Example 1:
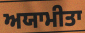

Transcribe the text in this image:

ਅਯਾਮੀਤਾ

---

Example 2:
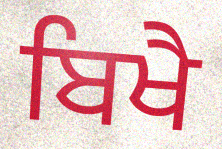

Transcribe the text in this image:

ਬਿਖੈ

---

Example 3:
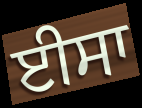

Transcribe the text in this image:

ਈਸਾ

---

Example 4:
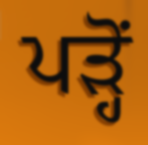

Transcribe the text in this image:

ਪੜ੍ਹੋਂ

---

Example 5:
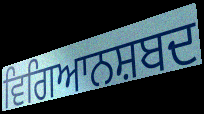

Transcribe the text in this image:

ਵਿਗਿਆਨਸ਼ਬਦ